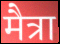
मैत्रा